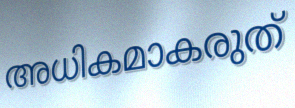
അധികമാകരുത്